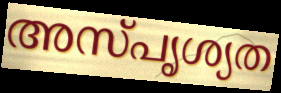
അസ്പൃശ്യത